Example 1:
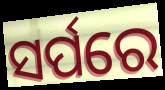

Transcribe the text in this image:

ସର୍ପରେ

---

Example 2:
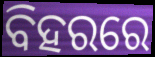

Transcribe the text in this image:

ବିହରରେ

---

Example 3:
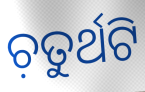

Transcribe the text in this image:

ଚ଼ତୁର୍ଥଟି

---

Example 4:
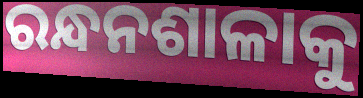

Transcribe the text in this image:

ରନ୍ଧନଶାଳାକୁ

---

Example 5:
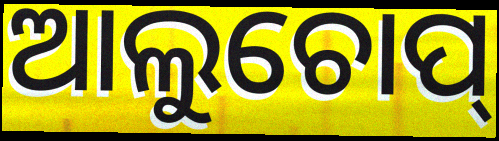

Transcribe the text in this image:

ଆଲୁଚୋପ୍